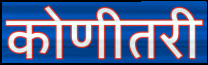
कोणीतरी